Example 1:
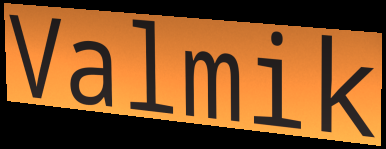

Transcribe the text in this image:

Valmik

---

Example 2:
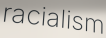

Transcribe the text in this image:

racialism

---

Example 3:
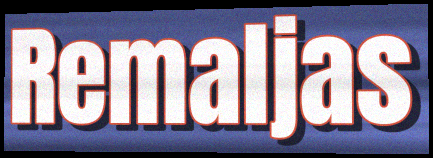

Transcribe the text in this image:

Remaljas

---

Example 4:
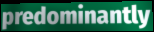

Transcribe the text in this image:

predominantly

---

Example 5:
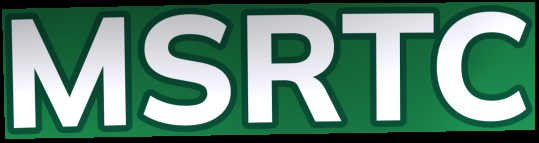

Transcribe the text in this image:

MSRTC